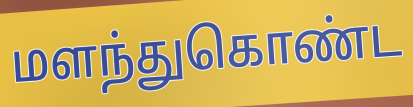
மளந்துகொண்ட